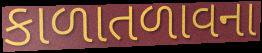
કાળાતળાવના